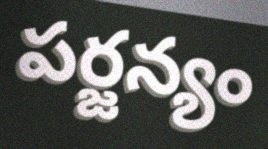
పర్జన్యం